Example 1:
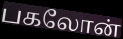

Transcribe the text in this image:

பகலோன்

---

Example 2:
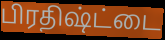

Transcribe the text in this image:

பிரதிஷ்ட்டை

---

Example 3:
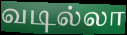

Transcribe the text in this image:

வடில்லா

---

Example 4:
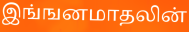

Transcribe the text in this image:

இங்ஙனமாதலின்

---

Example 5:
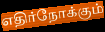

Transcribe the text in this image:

எதிர்நோக்கும்